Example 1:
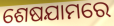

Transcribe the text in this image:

ଶେଷଯାମରେ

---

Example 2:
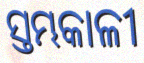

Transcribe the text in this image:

ସ୍ତମ୍ଭକାଳୀ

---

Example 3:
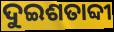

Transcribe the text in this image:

ଦୁଇଶତାବ୍ଦୀ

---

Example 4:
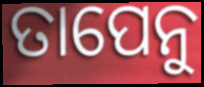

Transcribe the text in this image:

ତାପେନୁ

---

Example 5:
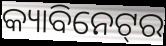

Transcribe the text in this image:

କ୍ୟାବିନେଟ୍‌ର